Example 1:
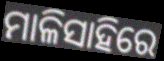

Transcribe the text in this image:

ମାଳିସାହିରେ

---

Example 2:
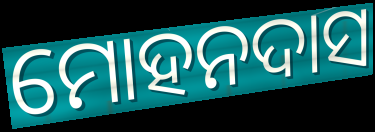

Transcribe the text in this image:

ମୋହନଦାସ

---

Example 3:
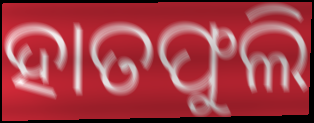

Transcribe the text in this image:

ହାତଫୁଲି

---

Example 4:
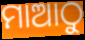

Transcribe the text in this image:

ମାଆଠୁ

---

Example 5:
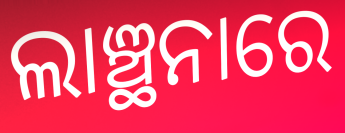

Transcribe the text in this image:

ଲାଞ୍ଛନାରେ